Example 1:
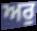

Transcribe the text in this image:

ਅਰੁ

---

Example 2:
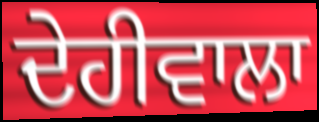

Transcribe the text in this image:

ਦੇਹੀਵਾਲਾ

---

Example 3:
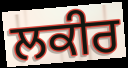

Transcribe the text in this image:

ਲਕੀਰ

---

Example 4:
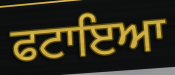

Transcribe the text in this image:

ਫਟਾਇਆ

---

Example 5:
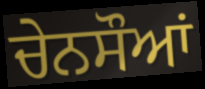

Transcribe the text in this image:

ਚੇਨਸੌਆਂ